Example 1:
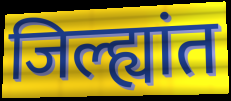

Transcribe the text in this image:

जिल्ह्यांत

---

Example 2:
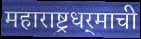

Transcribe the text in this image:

महाराष्ट्रधर्माची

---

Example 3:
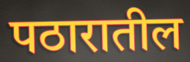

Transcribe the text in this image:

पठारातील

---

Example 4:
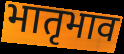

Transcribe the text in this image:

भातृभाव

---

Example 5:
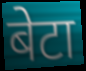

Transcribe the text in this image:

बेटा